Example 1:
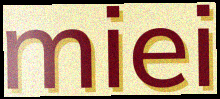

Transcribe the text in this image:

miei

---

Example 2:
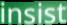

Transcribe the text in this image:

insist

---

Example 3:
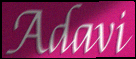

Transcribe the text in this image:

Adavi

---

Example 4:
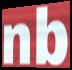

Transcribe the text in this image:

nb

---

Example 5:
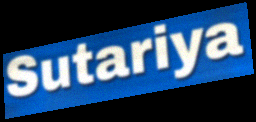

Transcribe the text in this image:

Sutariya